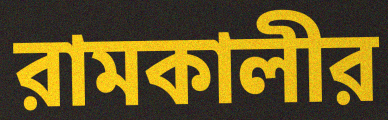
রামকালীর